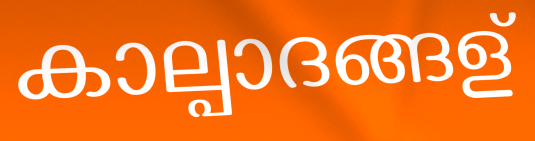
കാല്പാദങ്ങള്